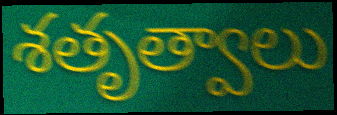
శతృత్వాలు